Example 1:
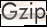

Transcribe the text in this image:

Gzip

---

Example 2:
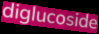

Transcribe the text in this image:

diglucoside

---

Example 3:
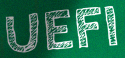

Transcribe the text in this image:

UEFI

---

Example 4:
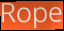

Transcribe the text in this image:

Rope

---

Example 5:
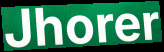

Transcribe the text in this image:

Jhorer